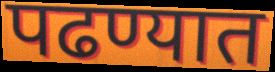
पढण्यात